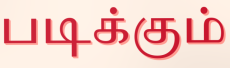
படிக்கும்